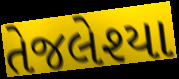
તેજલેશ્યા